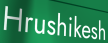
Hrushikesh